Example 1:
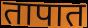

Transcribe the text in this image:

तापात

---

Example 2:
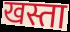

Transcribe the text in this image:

खस्ता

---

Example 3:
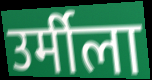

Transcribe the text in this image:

उर्मीला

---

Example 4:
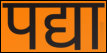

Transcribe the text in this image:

पद्या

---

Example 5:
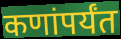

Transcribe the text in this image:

कणांपर्यंत